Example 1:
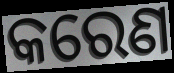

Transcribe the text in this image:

କରେଣ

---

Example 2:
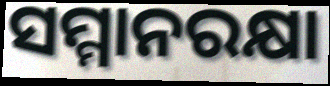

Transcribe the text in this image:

ସମ୍ମାନରକ୍ଷା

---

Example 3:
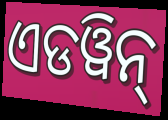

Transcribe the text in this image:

ଏଡୱିନ୍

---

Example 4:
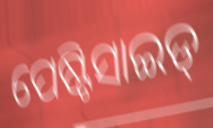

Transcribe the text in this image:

ପେଷ୍ଟିସାଇଡ୍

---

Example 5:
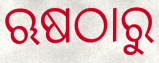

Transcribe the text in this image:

ଋଷଠାରୁ